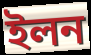
ইলন